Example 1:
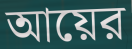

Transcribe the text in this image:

আয়ের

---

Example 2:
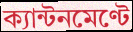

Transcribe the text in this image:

ক্যান্টনমেণ্টে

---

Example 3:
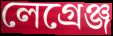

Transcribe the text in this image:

লেগ্রেঞ্জ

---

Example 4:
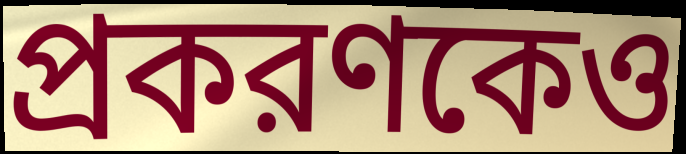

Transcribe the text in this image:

প্রকরণকেও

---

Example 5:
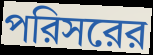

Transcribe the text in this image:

পরিসরের